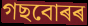
গছবোৰৰ